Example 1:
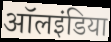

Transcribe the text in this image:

ऑलइंडिया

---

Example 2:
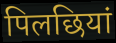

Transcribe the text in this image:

पिलछियां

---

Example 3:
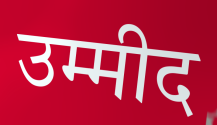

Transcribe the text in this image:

उम्‍मीद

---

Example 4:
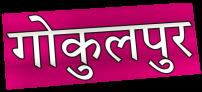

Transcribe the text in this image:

गोकुलपुर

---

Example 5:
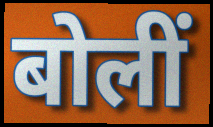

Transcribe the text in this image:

बोलीं